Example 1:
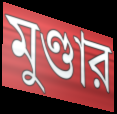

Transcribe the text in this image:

মুণ্ডার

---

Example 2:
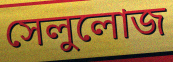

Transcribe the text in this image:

সেলুলোজ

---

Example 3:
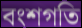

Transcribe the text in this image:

বংশগতি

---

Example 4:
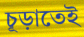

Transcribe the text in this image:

চূড়াতেই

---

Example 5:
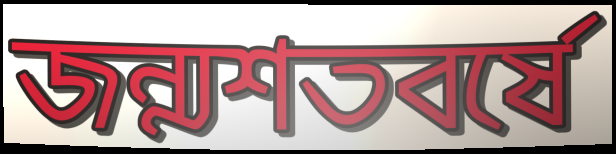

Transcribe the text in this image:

জন্মশতবর্ষে